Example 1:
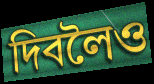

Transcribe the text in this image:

দিবলৈও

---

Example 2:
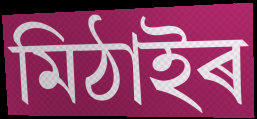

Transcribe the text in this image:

মিঠাইৰ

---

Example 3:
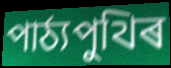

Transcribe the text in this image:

পাঠ্যপুথিৰ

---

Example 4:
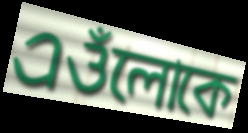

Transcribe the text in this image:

এওঁলোকে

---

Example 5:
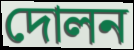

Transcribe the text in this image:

দোলন